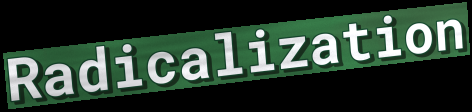
Radicalization